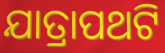
ଯାତ୍ରାପଥଟି